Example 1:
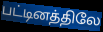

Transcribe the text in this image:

பட்டினத்திலே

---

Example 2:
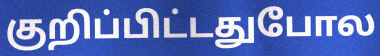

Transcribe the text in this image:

குறிப்பிட்டதுபோல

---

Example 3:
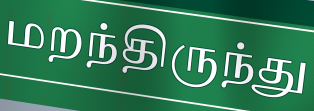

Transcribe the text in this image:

மறந்திருந்து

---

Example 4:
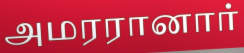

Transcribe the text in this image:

அமரரானார்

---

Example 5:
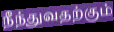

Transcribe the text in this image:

நீந்துவதற்கும்